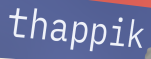
thappik